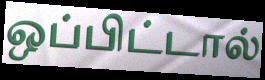
ஒப்பிட்டால்